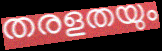
തരളതയും